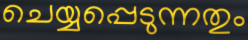
ചെയ്യപ്പെടുന്നതും